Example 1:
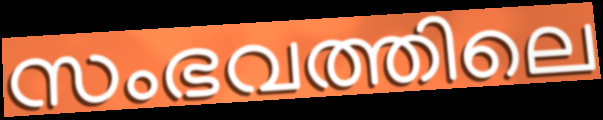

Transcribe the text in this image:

സംഭവത്തിലെ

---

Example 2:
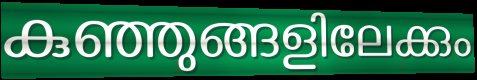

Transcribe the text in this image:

കുഞ്ഞുങ്ങളിലേക്കും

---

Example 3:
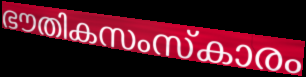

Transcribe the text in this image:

ഭൗതികസംസ്‌കാരം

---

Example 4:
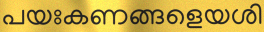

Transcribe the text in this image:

പയഃകണങ്ങളെയശി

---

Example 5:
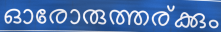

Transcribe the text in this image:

ഓരോരുത്തര്ക്കും